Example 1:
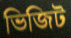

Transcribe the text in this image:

ভিজিট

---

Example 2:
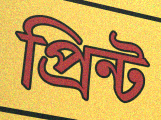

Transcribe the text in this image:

প্রিন্ট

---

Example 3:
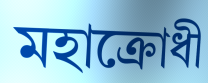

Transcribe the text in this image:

মহাক্রোধী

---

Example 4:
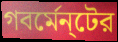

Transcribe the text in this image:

গবর্মেন্‌টের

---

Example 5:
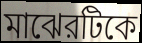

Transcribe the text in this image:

মাঝেরটিকে